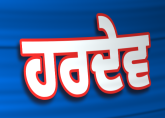
ਹਰਦੇਵ